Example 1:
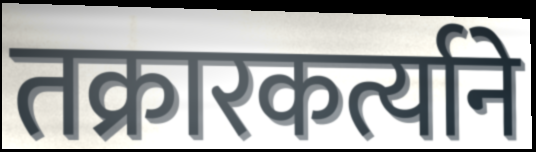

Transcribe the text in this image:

तक्रारकर्त्याने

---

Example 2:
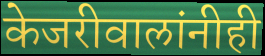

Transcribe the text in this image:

केजरीवालांनीही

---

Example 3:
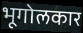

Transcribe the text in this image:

भूगोलकार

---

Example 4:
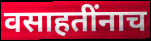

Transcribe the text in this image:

वसाहतींनाच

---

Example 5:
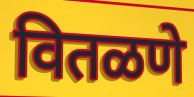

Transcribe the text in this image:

वितळणे